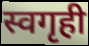
स्वगृही